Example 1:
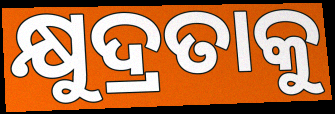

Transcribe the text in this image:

କ୍ଷୁଦ୍ରତାକୁ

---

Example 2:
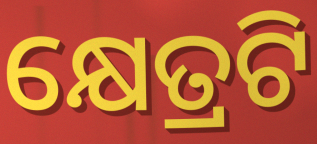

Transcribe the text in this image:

କ୍ଷେତ୍ରଟି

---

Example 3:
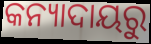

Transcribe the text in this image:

କନ୍ୟାଦାୟରୁ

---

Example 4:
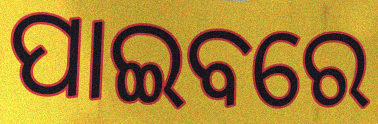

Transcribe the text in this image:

ପାଇବରେ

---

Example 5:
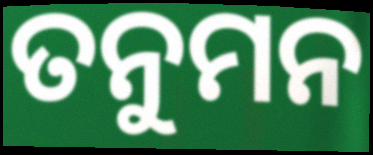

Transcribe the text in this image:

ତନୁମନ